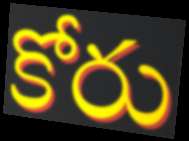
కోరు